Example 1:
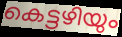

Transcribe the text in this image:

കെട്ടഴിയും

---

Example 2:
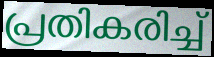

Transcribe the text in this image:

പ്രതികരിച്ച്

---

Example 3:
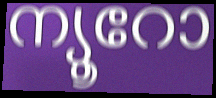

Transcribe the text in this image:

ന്യൂറോ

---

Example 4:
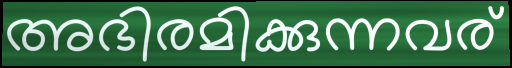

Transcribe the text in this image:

അഭിരമിക്കുന്നവര്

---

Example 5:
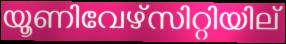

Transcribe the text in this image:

യൂണിവേഴ്സിറ്റിയില്